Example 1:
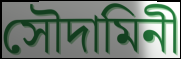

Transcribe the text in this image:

সৌদামিনী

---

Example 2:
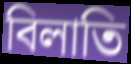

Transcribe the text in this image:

বিলাতি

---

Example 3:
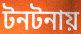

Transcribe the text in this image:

টনটনায়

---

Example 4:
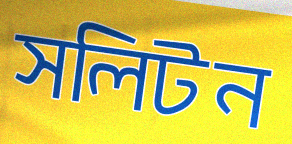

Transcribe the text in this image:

সলিটন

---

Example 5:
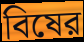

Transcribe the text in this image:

বিষের